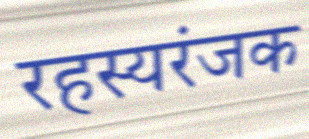
रहस्यरंजक